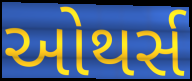
ઓથર્સ